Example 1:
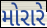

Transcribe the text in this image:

મોરારે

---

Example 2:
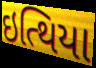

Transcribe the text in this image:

ઇત્થિયા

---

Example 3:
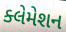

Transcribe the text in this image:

ક્લેમેશન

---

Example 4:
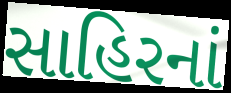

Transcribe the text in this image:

સાહિરનાં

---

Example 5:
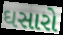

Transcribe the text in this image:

ઘસારો